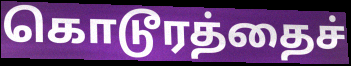
கொடூரத்தைச்